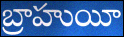
బ్రాహుయీ